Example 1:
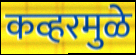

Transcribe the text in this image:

कव्हरमुळे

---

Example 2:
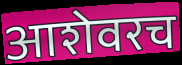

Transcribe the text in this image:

आशेवरच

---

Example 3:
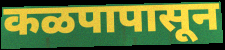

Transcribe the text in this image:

कळपापासून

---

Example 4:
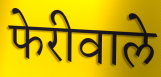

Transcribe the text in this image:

फेरीवाले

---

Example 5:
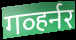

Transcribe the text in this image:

गव्हर्नर